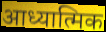
आध्यात्मिक